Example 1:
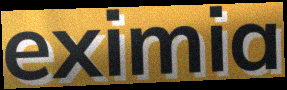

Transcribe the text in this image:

eximia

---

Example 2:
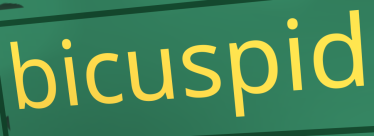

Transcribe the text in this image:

bicuspid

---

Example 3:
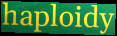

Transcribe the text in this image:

haploidy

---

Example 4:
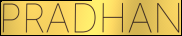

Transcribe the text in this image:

PRADHAN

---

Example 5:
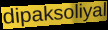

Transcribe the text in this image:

dipaksoliyal